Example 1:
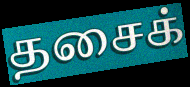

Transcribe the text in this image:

தசைக்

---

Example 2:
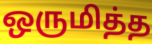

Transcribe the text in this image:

ஒருமித்த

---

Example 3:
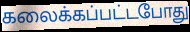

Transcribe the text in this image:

கலைக்கப்பட்டபோது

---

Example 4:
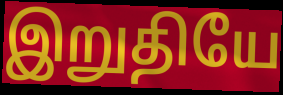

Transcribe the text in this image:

இறுதியே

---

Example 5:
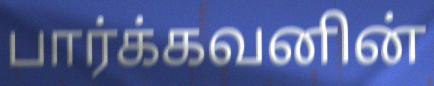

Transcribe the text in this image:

பார்க்கவனின்